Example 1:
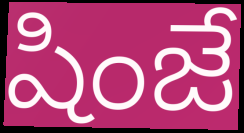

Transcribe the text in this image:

షింజే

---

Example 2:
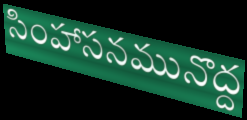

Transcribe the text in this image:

సింహాసనమునొద్ద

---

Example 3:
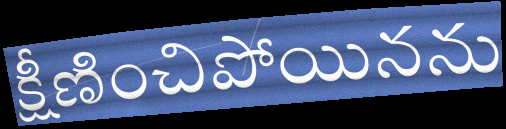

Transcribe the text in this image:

క్షీణించిపోయినను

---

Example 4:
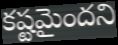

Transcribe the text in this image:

కష్టమైందని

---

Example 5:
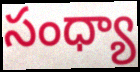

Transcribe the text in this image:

సంధ్యా